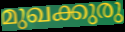
മുഖക്കുരു